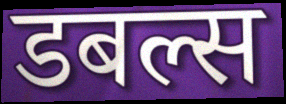
डबल्स